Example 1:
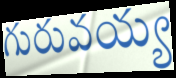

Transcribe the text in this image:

గురువయ్య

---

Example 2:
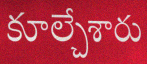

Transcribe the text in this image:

కూల్చేశారు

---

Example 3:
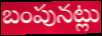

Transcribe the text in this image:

బంపునట్లు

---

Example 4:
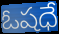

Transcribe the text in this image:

ఓషధే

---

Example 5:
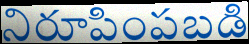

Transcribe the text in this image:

నిరూపింపబడి